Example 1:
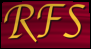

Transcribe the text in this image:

RFS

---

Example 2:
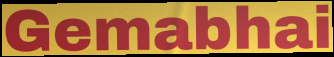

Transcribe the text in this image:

Gemabhai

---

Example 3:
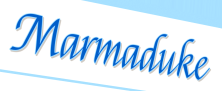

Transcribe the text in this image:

Marmaduke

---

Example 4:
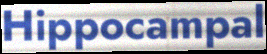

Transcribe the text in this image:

Hippocampal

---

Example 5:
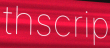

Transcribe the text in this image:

thscrip